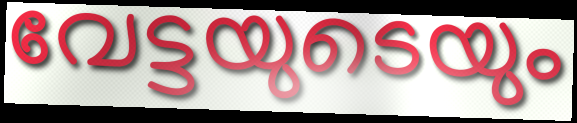
വേട്ടയുടെയും